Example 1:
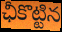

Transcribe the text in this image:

ఛీకొట్టిన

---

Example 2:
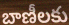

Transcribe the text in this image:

బాణీలకు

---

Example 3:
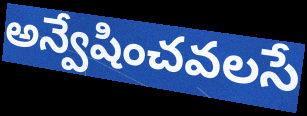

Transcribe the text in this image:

అన్వేషించవలసే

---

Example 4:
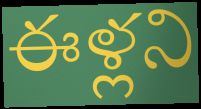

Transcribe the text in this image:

ఈళ్లని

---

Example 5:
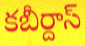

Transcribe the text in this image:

కబీర్దాస్